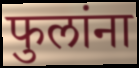
फुलांना